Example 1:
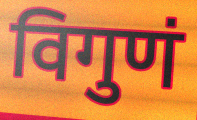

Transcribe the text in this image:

विगुणं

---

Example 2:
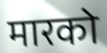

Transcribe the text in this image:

मारको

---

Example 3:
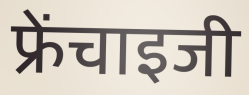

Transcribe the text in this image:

फ्रेंचाइजी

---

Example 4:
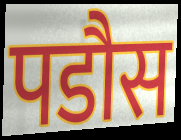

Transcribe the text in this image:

पडौस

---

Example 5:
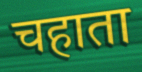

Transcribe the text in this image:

चहाता